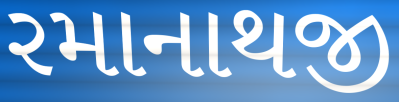
રમાનાથજી